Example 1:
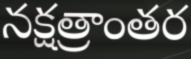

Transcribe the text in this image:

నక్షత్రాంతర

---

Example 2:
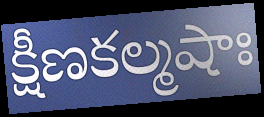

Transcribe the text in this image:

క్షీణకల్మషాః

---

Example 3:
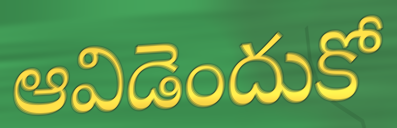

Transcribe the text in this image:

ఆవిడెందుకో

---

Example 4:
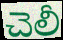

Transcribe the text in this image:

చెలీ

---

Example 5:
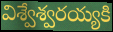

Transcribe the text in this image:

విశ్వేశ్వరయ్యకి